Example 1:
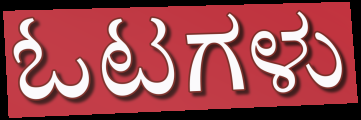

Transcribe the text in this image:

ಓಟಗಳು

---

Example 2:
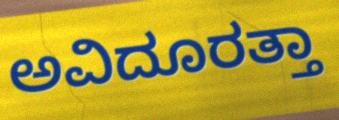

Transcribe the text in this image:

ಅವಿದೂರತ್ತಾ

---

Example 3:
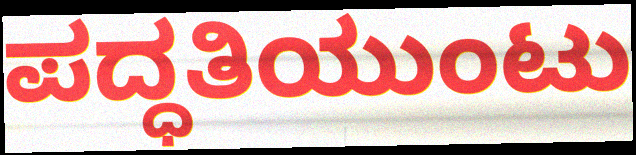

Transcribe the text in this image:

ಪದ್ಧತಿಯುಂಟು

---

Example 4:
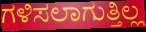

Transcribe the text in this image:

ಗಳಿಸಲಾಗುತ್ತಿಲ್ಲ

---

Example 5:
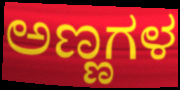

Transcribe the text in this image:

ಅಣ್ಣಗಳ